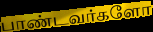
பாண்டவர்களோ